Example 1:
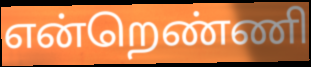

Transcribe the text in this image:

என்றெண்ணி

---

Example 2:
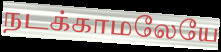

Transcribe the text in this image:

நடக்காமலேயே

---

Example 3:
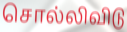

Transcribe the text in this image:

சொல்லிவிடு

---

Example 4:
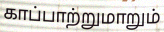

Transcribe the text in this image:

காப்பாற்றுமாறும்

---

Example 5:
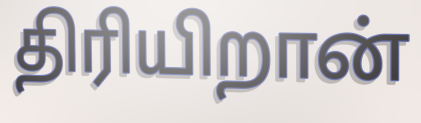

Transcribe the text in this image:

திரியிறான்